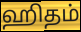
ஹிதம்